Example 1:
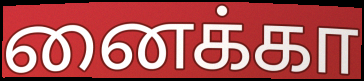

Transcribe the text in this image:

னைக்கா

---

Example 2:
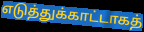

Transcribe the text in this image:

எடுத்துக்காட்டாகத்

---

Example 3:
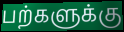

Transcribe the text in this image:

பற்களுக்கு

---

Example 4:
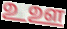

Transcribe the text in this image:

உஊ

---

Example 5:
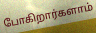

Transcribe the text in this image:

போகிறார்களாம்